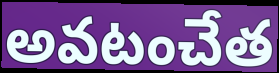
అవటంచేత